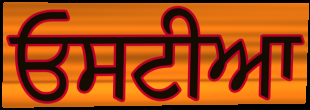
ਓਸਟੀਆ